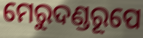
ମେରୁଦଣ୍ଡରୂପେ